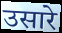
उसारे